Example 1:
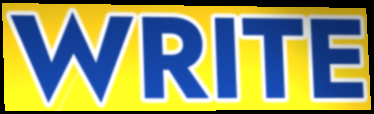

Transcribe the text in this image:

WRITE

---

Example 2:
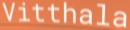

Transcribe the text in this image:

Vitthala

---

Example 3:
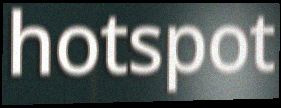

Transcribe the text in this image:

hotspot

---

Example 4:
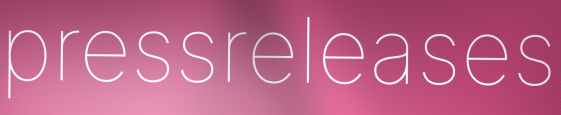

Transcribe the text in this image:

pressreleases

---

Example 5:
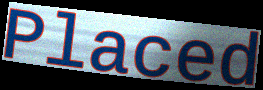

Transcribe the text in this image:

Placed